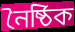
নৈষ্ঠিক